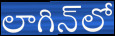
లాగిన్‌లో